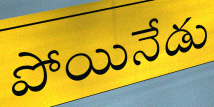
పోయినేడు